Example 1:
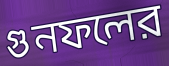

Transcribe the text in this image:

গুনফলের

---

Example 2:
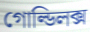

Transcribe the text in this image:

গোল্ডিলক্স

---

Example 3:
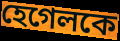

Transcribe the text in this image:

হেগেলকে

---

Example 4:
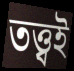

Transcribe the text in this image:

তত্ত্বই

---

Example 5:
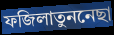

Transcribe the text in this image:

ফজিলাতুননেছা